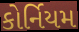
કોર્નિયમ